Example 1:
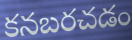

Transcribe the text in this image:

కనబరచడం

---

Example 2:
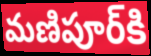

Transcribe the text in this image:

మణిపూర్‌కి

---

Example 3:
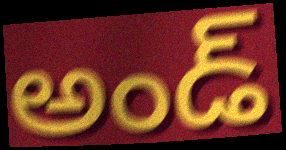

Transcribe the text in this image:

అండ్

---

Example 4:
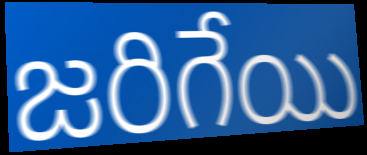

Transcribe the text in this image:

జరిగేయి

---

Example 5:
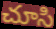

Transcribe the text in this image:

చూసి